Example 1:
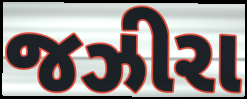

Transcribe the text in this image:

જઝીરા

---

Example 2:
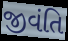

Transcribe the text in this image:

જીવંતિ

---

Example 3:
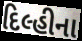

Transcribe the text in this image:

દિલ્હીના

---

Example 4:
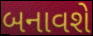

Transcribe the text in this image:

બનાવશે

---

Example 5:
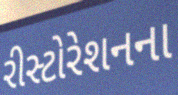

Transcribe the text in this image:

રીસ્ટોરેશનના